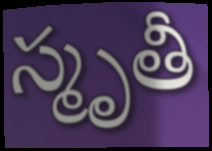
స్మృతీ